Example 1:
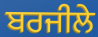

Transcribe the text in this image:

ਬਰਜੀਲੇ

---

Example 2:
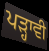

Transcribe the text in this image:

ਪੜ੍ਹਾਵੀ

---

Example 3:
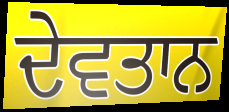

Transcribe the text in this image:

ਦੇਵਤਾਨ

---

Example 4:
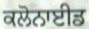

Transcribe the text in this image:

ਕਲੋਨਾਈਡ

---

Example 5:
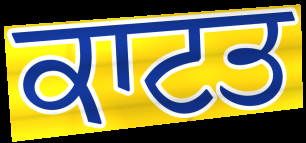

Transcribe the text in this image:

ਕਾਟਤ